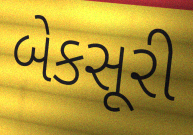
બેકસૂરી